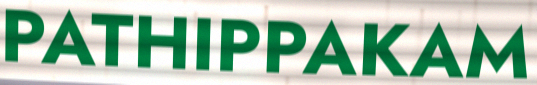
PATHIPPAKAM